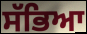
ਸੱਭਿਆ